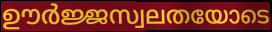
ഊർജ്ജസ്വലതയോടെ